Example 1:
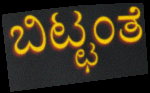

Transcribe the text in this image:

ಬಿಟ್ಟಂತೆ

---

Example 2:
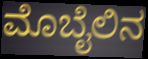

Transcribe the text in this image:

ಮೊಬೈಲಿನ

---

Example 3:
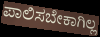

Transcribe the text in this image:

ಪಾಲಿಸಬೇಕಾಗಿಲ್ಲ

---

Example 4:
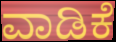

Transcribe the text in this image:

ವಾಡಿಕೆ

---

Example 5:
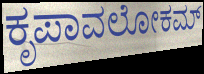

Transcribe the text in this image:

ಕೃಪಾವಲೋಕಮ್